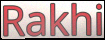
Rakhi